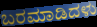
ಬರಮಾಡಿದಳು